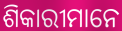
ଶିକାରୀମାନେ